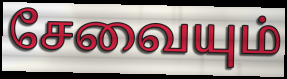
சேவையும்